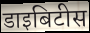
डाइबिटीस